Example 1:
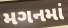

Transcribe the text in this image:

મગનમાં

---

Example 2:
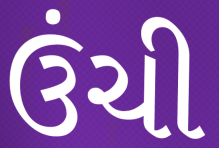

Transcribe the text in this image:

ઉંચી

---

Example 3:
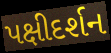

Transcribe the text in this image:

પક્ષીદર્શન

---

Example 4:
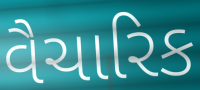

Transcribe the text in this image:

વૈચારિક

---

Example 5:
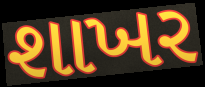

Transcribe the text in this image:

શાખર